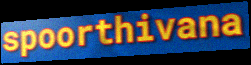
spoorthivana